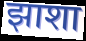
झाशा